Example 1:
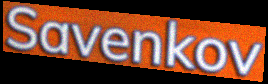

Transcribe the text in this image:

Savenkov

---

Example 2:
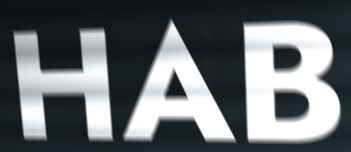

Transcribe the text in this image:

HAB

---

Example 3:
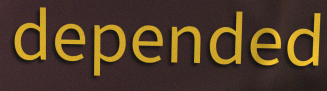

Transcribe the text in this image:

depended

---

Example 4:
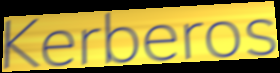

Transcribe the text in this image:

Kerberos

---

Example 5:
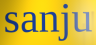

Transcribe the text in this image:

sanju